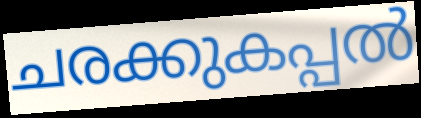
ചരക്കുകപ്പൽ